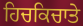
ਹਿਚਕਿਚਾਤੇ